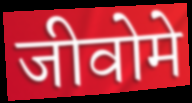
जीवोमे